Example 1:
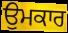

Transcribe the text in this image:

ਉਮਕਾਰ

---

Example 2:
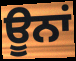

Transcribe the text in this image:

ਊਨਾਂ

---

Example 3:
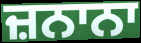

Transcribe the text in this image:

ਜ਼ਨਾਨਾ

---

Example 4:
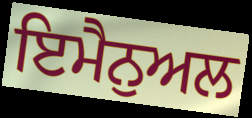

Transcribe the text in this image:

ਇਮੈਨੁਅਲ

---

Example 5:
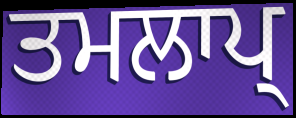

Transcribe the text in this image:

ਤਮਲਾਪ੍